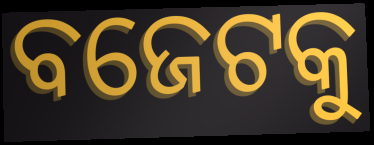
ବଜେଟକୁ